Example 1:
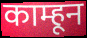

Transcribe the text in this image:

काम्हून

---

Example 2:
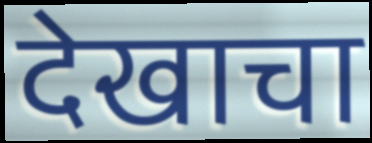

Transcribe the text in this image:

देखाचा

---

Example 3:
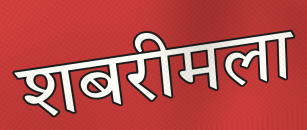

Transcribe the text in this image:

शबरीमला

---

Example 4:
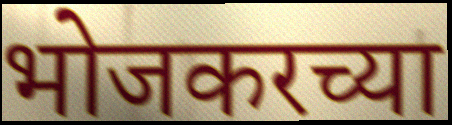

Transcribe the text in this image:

भोजकरच्या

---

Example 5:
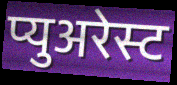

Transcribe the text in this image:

प्युअरेस्ट